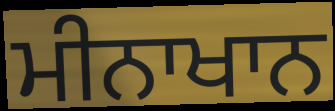
ਮੀਨਾਖਾਨ